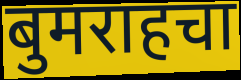
बुमराहचा